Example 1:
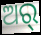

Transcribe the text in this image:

ଅର୍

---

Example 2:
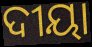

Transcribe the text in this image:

ଦୀୟା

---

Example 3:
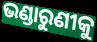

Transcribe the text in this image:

ଭଣ୍ଡାରୁଣୀକୁ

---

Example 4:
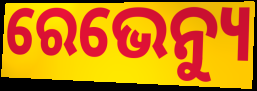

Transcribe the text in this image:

ରେଭେନ୍ୟୁ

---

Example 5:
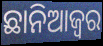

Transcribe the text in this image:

ଛାନିଆଜ୍ୱର